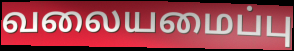
வலையமைப்பு